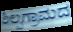
ಶಿಲ್ಪಗ್ರಾಮದ